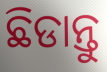
ଛିଡାନ୍ତୁ